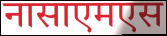
नासाएमएस